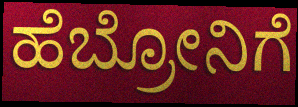
ಹೆಬ್ರೋನಿಗೆ